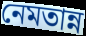
নেমতান্ন